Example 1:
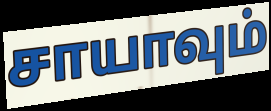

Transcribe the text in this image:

சாயாவும்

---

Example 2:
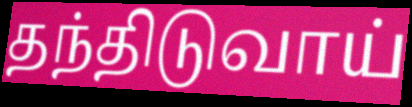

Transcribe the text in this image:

தந்திடுவாய்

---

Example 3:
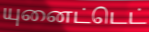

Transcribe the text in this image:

யுனைட்டெட்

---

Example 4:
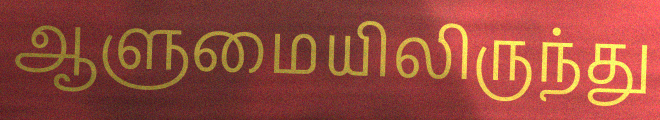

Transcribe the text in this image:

ஆளுமையிலிருந்து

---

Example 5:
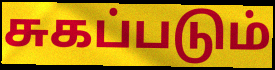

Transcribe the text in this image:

சுகப்படும்